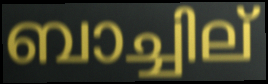
ബാച്ചില്